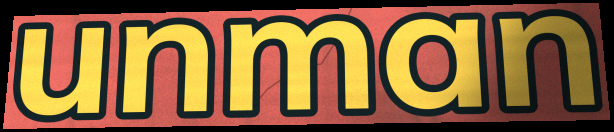
unman